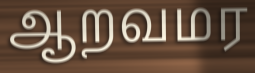
ஆறவமர